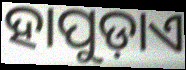
ହାପୁଡ଼ାଏ